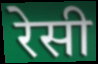
रेसी